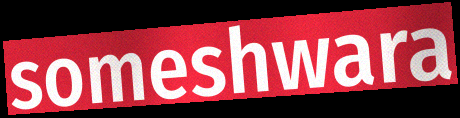
someshwara